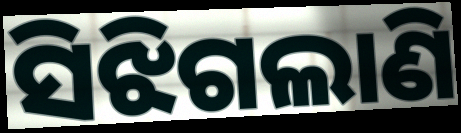
ସିଝିଗଲାଣି